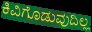
ಕಿವಿಗೊಡುವುದಿಲ್ಲ